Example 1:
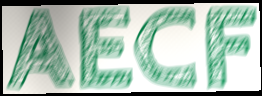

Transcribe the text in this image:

AECF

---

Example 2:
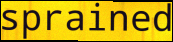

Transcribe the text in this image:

sprained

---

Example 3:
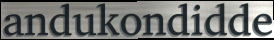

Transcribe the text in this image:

andukondidde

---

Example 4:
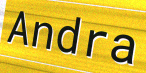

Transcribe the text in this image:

Andra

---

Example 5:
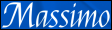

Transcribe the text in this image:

Massimo